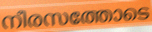
നീരസത്തോടെ